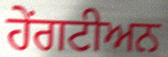
ਹੇਂਗਟੀਅਨ